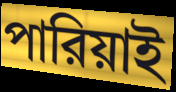
পারিয়াই